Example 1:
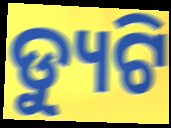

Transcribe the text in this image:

ଡ୍ୟୁଟି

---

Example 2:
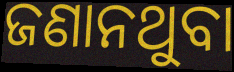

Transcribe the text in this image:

ଜଣାନଥୁବା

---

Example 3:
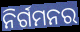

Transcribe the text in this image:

ନିର୍ଗମନର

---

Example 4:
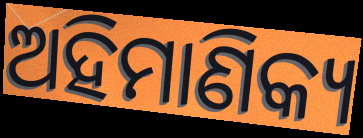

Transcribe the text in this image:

ଅହିମାଣିକ୍ୟ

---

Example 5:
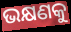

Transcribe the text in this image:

ଭକ୍ଷଣକୁ